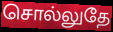
சொல்லுதே